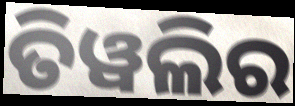
ତିୱଲିର